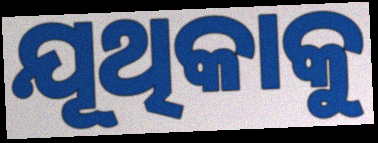
ଯୂଥିକାକୁ